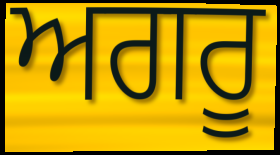
ਅਗਰੂ